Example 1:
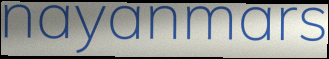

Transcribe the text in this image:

nayanmars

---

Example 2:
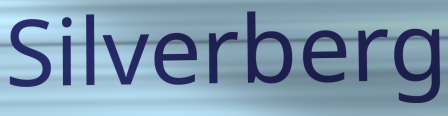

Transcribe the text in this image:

Silverberg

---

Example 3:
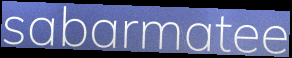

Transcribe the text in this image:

sabarmatee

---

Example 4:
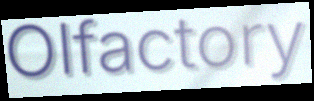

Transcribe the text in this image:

Olfactory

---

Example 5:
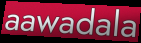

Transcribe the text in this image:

aawadala